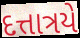
દત્તાત્રયે